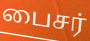
பைசர்